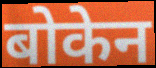
बोकेन